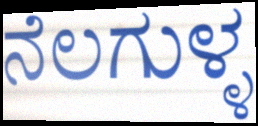
ನೆಲಗುಳ್ಳ